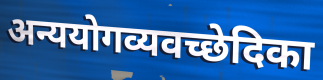
अन्ययोगव्यवच्छेदिका